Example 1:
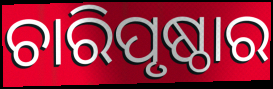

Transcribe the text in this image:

ଚାରିପୃଷ୍ଠାର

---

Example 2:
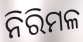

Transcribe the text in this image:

ନିରିମଳ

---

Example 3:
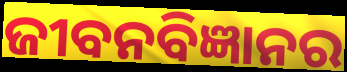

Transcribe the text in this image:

ଜୀବନବିଜ୍ଞାନର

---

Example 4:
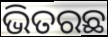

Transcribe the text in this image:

ଭିତରଛ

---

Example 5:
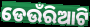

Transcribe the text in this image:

ଡେଉଁରିଆଟି